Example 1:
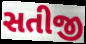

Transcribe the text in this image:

સતીજી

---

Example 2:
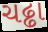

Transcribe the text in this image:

ચઢ્ઢા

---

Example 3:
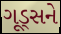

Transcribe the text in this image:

ગૂડ્સને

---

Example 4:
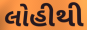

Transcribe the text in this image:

લોહીથી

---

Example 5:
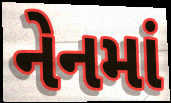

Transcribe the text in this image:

નેનમાં